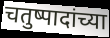
चतुष्पादांच्या